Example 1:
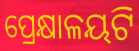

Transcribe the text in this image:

ପ୍ରେକ୍ଷାଳୟଟି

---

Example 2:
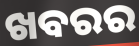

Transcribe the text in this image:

ଖବରର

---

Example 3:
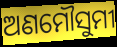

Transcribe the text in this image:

ଅଣମୌସୁମୀ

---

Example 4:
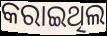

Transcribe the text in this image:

କରାଇଥିଲ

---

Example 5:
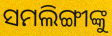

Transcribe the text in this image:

ସମଲିଙ୍ଗୀଙ୍କୁ